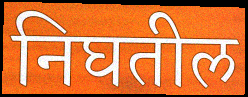
निघतील